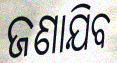
ଜଣାଯିବ